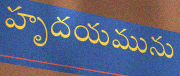
హృదయమును